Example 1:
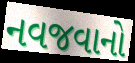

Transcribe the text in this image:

નવજવાનો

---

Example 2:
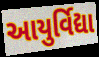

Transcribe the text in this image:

આયુર્વિદ્યા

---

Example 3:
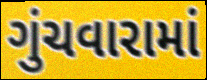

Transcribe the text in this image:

ગુંચવારામાં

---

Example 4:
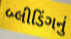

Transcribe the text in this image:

બ્લીડિંગનું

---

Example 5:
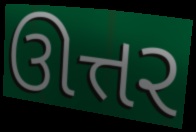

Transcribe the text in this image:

ઊત્તર